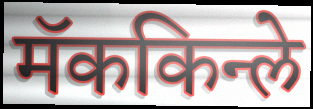
मॅककिन्ले